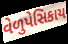
વેળુપેસિકાય